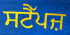
ਸਟੈੱਪਜ਼